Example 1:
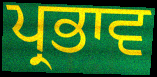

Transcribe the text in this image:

ਪ੍ਰਭਾਵ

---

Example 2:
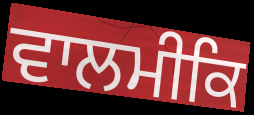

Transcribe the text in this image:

ਵਾਲਮੀਕਿ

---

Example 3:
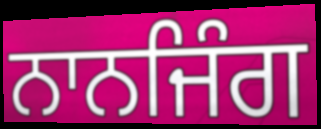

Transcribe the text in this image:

ਨਾਨਜਿੰਗ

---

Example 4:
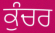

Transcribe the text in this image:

ਕੁੰਚਰ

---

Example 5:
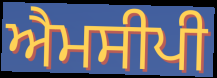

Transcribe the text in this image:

ਐਮਸੀਪੀ